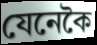
যেনেকৈ